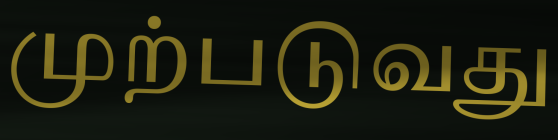
முற்படுவது